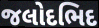
જલોદભિદ